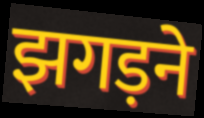
झगड़ने